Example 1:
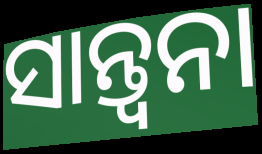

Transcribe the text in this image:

ସାନ୍ତ୍ବନା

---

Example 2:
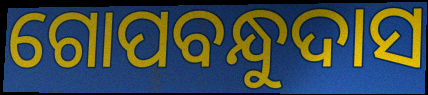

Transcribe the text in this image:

ଗୋପବନ୍ଧୁଦାସ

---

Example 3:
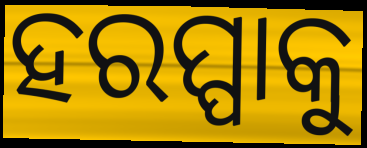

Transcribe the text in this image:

ହରପ୍ପାକୁ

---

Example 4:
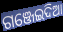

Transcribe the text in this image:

ଗଞ୍ଜେଇଦିଆ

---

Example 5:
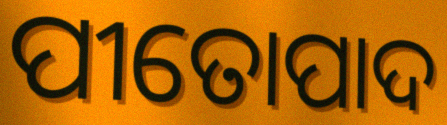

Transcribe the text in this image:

ପୀତୋପାଦ